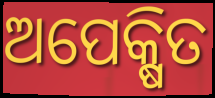
ଅପେକ୍ଷିତ